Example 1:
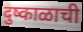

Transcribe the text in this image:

दुष्काळाची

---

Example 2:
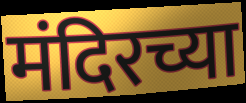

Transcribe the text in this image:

मंदिरच्या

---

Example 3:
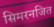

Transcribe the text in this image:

सिमरनजित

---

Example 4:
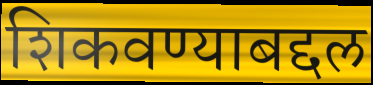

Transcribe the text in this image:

शिकवण्याबद्दल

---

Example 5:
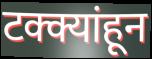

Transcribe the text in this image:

टक्क्यांहून